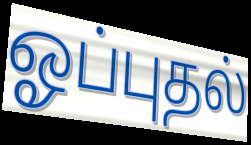
ஓப்புதல்